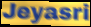
Jeyasri